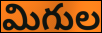
మిగుల